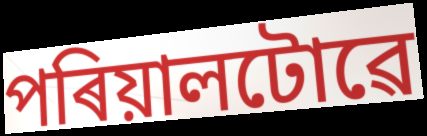
পৰিয়ালটোৱে